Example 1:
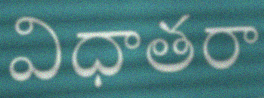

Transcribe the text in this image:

విధాతరా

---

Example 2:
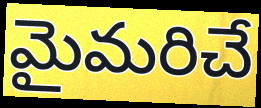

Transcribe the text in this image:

మైమరిచే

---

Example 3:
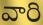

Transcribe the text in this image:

వారి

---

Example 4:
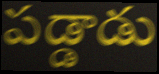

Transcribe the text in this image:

పడ్డాడు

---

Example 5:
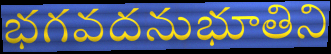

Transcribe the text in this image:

భగవదనుభూతిని